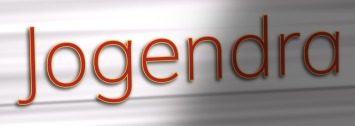
Jogendra